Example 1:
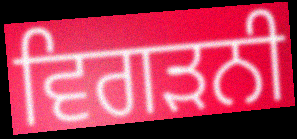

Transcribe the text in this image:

ਵਿਗੜਨੀ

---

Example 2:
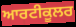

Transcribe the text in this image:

ਆਰਟੀਕੂਲਰ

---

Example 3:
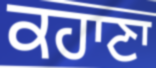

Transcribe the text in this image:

ਕਹਾਣਾ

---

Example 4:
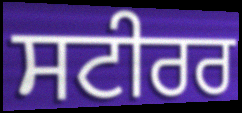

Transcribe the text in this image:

ਸਟੀਰਰ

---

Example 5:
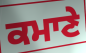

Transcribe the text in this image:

ਕਮਾਣੇ